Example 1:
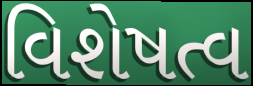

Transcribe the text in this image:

વિશેષત્વ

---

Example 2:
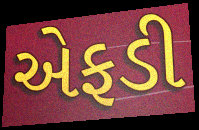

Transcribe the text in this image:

એફડી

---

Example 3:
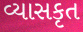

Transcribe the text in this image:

વ્યાસકૃત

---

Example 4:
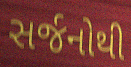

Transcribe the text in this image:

સર્જનોથી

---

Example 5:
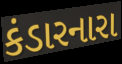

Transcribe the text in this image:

કંડારનારા